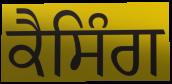
ਕੈਸਿੰਗ